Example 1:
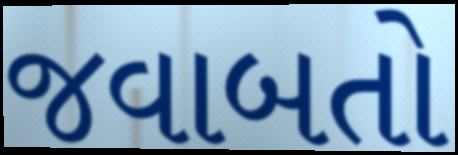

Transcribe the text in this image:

જવાબતો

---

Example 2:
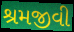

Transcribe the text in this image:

શ્રમજીવી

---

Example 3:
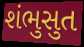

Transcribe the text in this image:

શંભુસુત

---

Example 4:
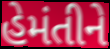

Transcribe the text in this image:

હેમંતીને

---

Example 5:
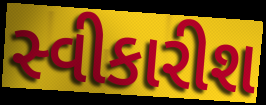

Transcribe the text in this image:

સ્વીકારીશ